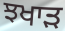
ਝਖਾੜ